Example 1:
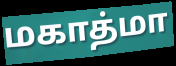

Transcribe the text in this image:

மகாத்மா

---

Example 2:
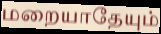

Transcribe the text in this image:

மறையாதேயும்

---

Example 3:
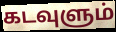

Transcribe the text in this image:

கடவுளும்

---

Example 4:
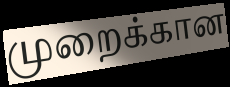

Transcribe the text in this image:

முறைக்கான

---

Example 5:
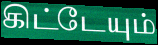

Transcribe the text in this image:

கிட்டேயும்